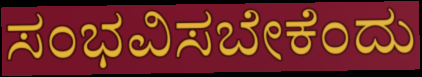
ಸಂಭವಿಸಬೇಕೆಂದು